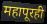
महापूरही